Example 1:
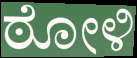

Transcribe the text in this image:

ಠೋಳಿ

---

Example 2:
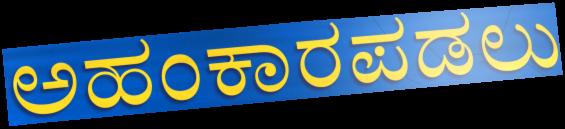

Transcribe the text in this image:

ಅಹಂಕಾರಪಡಲು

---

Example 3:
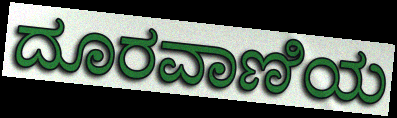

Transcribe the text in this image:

ದೂರವಾಣಿಯ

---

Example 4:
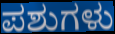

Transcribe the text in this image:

ಪಶುಗಳು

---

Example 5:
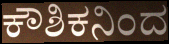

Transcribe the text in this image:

ಕೌಶಿಕನಿಂದ